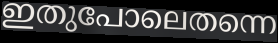
ഇതുപോലെതന്നെ